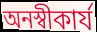
অনস্বীকাৰ্য